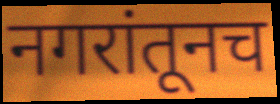
नगरांतूनच